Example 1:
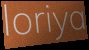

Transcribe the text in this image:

loriya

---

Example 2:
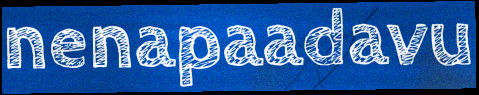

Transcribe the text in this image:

nenapaadavu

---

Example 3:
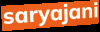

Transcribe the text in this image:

saryajani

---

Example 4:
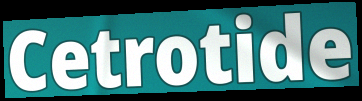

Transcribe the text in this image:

Cetrotide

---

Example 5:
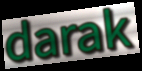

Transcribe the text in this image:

darak